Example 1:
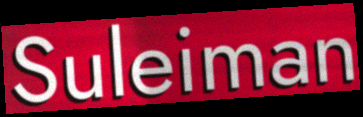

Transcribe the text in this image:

Suleiman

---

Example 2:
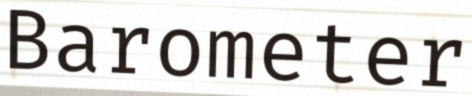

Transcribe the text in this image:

Barometer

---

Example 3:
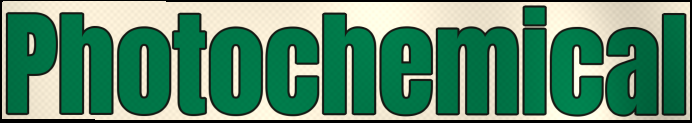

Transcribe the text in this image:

Photochemical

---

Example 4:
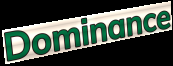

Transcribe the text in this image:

Dominance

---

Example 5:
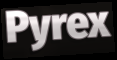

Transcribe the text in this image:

Pyrex